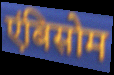
एंबिसोम